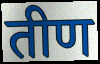
तीण